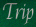
Trip